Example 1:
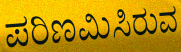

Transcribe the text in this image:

ಪರಿಣಮಿಸಿರುವ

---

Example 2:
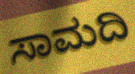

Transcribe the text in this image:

ಸಾಮದಿ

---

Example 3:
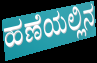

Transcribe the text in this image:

ಹಣೆಯಲ್ಲಿನ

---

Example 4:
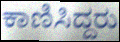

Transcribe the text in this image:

ಕಾಣಿಸಿದ್ದರು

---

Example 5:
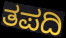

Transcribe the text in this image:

ತಪದಿ